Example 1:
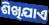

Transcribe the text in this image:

ଶିଖିଯାଏ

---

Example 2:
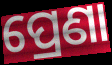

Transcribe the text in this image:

ପ୍ରେଣା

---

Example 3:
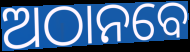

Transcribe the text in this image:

ଅଠାନବେ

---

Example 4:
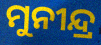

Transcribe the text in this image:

ମୁନୀନ୍ଦ୍ର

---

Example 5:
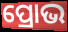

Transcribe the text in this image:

ପ୍ରୋଭ